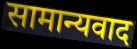
सामान्यवाद